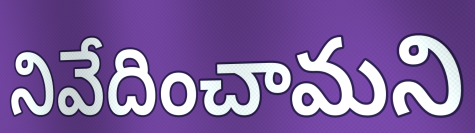
నివేదించామని